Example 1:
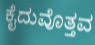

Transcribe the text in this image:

ಕೈದುವೊತ್ತವ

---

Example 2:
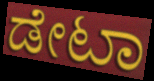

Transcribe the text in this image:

ಡೇಟಾ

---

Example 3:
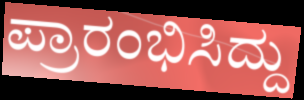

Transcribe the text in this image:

ಪ್ರಾರಂಭಿಸಿದ್ದು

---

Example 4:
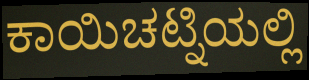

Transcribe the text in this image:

ಕಾಯಿಚಟ್ನಿಯಲ್ಲಿ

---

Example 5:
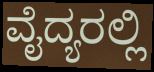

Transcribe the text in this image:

ವೈದ್ಯರಲ್ಲಿ